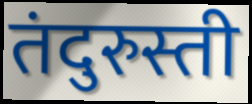
तंदुरुस्ती